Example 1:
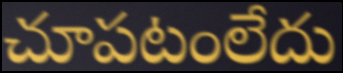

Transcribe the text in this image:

చూపటంలేదు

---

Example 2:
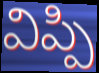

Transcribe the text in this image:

విప్పి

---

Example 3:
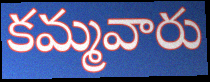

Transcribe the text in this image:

కమ్మవారు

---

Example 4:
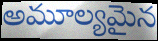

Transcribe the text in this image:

అమూల్యమైన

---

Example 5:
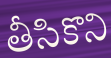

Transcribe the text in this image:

తీసికొని